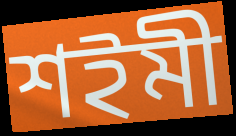
শইমী